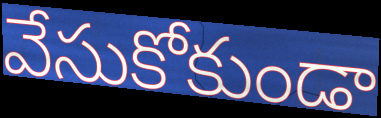
వేసుకోకుండా